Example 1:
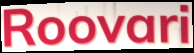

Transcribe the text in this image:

Roovari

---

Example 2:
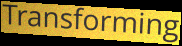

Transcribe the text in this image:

Transforming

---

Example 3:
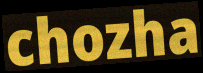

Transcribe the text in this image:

chozha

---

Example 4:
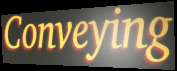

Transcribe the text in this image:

Conveying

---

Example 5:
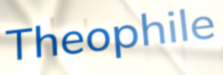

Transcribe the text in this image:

Theophile